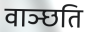
वाञ्छति